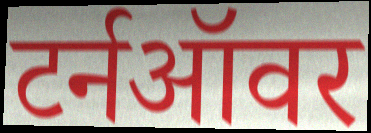
टर्नऑवर